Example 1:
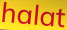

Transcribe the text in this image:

halat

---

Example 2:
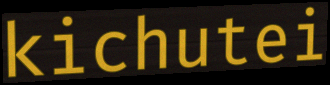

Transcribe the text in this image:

kichutei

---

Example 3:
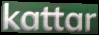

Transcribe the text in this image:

kattar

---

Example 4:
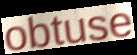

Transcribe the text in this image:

obtuse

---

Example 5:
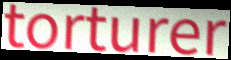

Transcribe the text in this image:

torturer